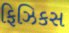
ફિઝિકસ